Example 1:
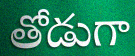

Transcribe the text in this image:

తోడుగా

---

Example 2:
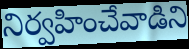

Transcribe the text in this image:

నిర్వహించేవాడిని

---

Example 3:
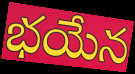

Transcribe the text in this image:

భయేన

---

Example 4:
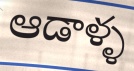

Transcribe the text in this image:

ఆడాళ్ళ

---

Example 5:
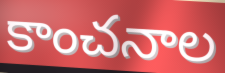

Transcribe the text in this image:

కాంచనాల